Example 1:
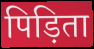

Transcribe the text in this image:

पिड़िता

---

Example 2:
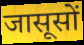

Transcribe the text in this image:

जासूसों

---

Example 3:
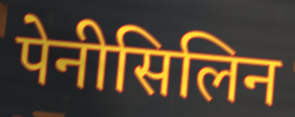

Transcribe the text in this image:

पेनीसिलिन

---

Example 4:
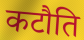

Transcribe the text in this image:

कटौति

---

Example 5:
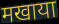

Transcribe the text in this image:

मखाया